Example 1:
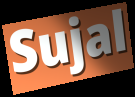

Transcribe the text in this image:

Sujal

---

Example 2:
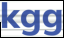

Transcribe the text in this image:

kgg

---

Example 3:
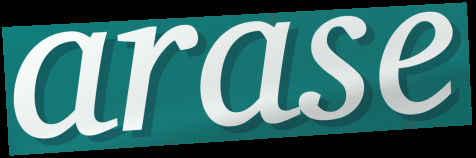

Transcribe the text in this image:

arase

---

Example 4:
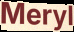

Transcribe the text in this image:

Meryl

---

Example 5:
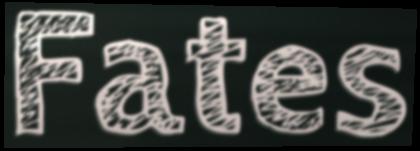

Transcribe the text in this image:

Fates